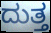
ದುತ್ತ